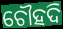
ଚୌହଦି